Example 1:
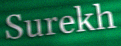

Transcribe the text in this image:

Surekh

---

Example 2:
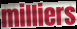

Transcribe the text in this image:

milliers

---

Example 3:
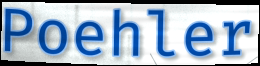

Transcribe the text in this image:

Poehler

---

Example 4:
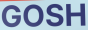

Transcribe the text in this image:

GOSH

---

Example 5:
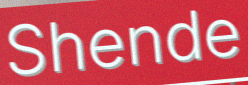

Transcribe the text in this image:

Shende